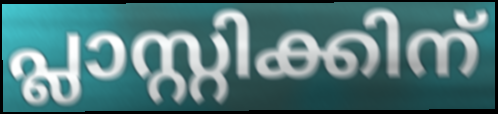
പ്ലാസ്റ്റിക്കിന്